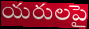
యరులపై